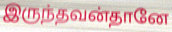
இருந்தவன்தானே